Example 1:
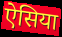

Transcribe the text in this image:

ऐसिया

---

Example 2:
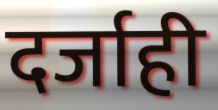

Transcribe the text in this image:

दर्जाही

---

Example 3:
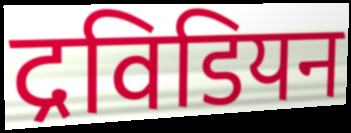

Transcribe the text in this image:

द्रविडियन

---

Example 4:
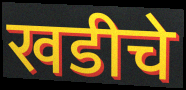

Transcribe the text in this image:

खडीचे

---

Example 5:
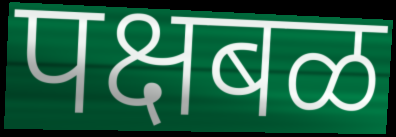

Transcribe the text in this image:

पक्षबळ